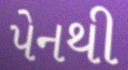
પેનથી